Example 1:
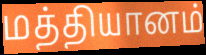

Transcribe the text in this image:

மத்தியானம்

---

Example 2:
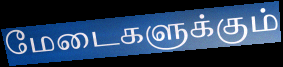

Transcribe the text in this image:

மேடைகளுக்கும்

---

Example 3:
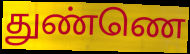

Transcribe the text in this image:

துண்ணெ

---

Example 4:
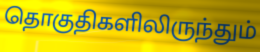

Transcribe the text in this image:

தொகுதிகளிலிருந்தும்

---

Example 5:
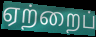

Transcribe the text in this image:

ஏற்றைப்